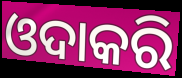
ଓଦାକରି